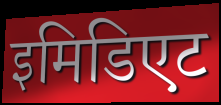
इमिडिएट